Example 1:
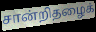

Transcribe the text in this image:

சான்றிதழைக்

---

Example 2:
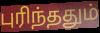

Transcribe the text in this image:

புரிந்ததும்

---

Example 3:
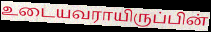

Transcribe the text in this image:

உடையவராயிருப்பின்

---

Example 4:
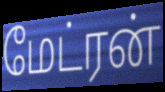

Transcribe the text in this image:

மேட்ரன்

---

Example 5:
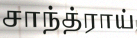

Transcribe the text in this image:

சாந்த்ராய்